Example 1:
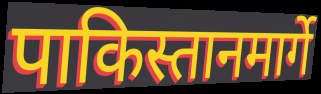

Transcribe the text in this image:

पाकिस्तानमार्गे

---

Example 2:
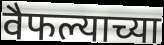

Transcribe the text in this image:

वैफल्याच्या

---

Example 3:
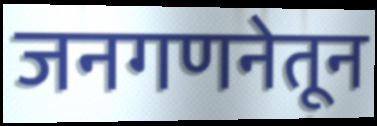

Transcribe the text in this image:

जनगणनेतून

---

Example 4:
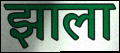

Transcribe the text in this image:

झाला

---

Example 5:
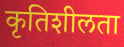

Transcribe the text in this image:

कृतिशीलता